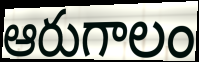
ఆరుగాలం